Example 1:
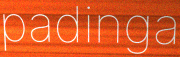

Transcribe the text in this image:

padinga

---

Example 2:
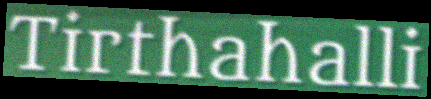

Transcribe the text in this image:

Tirthahalli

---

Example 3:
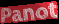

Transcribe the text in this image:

Panot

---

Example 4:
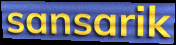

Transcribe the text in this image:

sansarik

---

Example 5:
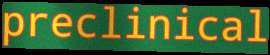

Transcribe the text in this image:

preclinical